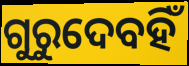
ଗୁରୁଦେବହିଁ